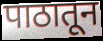
पाठातून